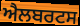
ਐਲਬਰਟਸ